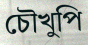
চৌখুপি